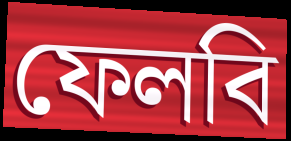
ফেলবি